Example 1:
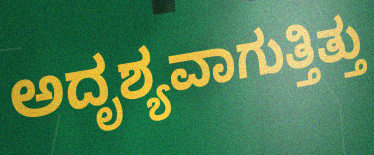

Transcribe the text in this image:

ಅದೃಶ್ಯವಾಗುತ್ತಿತ್ತು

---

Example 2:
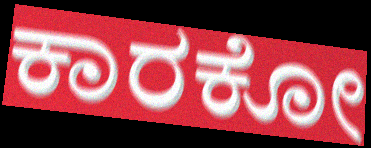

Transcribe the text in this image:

ಕಾರಕೋ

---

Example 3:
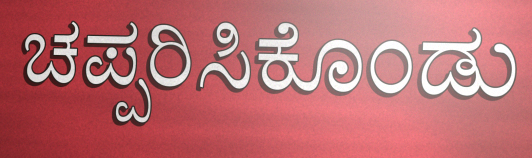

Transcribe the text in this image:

ಚಪ್ಪರಿಸಿಕೊಂಡು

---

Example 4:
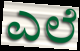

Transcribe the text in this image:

ಎಲೆ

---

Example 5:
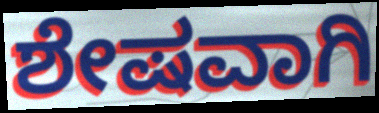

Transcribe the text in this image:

ಶೇಷವಾಗಿ